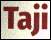
Taji